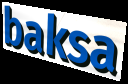
baksa